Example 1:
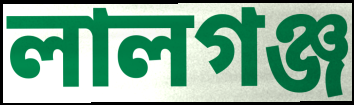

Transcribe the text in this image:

লালগঞ্জ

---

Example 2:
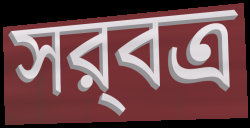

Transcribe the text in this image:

সর্‍বত্র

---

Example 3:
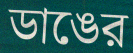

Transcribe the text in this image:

ডাঙের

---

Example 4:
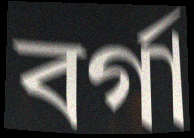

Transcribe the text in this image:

বর্গা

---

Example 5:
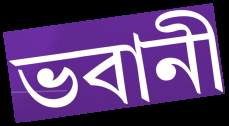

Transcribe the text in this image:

ভবানী